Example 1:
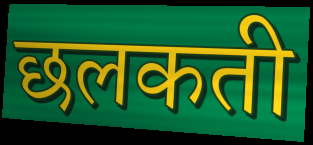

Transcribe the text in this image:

छलकती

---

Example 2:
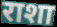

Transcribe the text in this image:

राशा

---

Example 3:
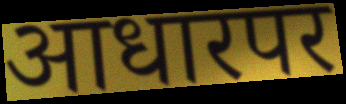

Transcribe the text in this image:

आधारपर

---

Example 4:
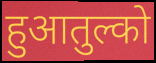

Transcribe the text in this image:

हुआतुल्को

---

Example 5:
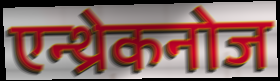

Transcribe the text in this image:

एन्थ्रेकनोज